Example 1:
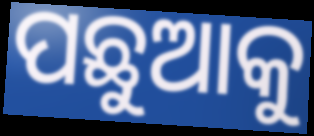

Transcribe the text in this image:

ପଛୁଆକୁ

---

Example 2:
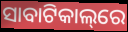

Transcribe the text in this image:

ସାବାଟିକାଲ୍‌ରେ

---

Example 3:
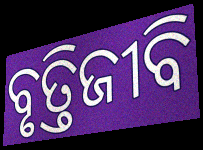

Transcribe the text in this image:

ବୃତ୍ତିଜୀବି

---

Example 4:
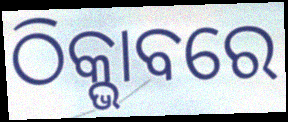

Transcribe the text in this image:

ଠିକ୍ଭାବରେ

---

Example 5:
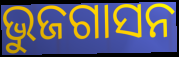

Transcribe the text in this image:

ଭୁଜଗାସନ